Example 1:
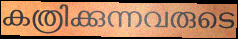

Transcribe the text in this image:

കത്രിക്കുന്നവരുടെ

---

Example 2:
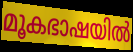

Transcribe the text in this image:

മൂകഭാഷയിൽ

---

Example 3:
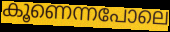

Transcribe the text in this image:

കൂണെന്നപോലെ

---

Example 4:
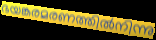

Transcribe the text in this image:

ഭയങ്കരമരണത്തിൽനിന്നു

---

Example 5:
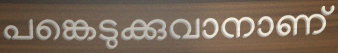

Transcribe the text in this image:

പങ്കെടുക്കുവാനാണ്